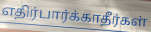
எதிர்பார்க்காதீர்கள்